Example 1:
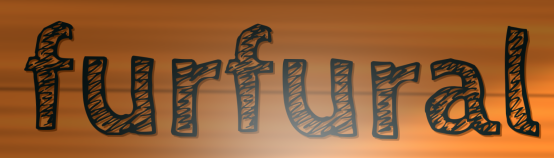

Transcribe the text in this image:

furfural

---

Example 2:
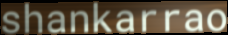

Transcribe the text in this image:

shankarrao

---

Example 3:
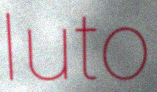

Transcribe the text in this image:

luto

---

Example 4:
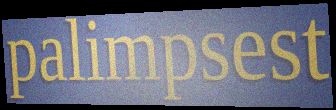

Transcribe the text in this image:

palimpsest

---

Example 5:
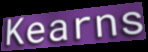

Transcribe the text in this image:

Kearns